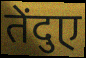
तेंदुए